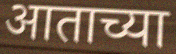
आताच्या